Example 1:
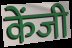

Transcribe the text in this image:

केंजी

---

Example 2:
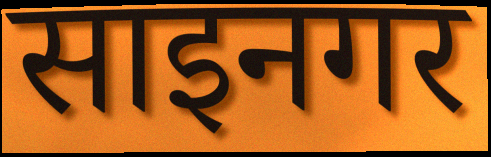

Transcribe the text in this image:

साइनगर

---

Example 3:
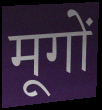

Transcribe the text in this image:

मूगों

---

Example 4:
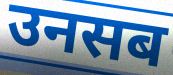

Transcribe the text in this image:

उनसब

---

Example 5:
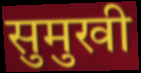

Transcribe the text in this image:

सुमुखी